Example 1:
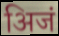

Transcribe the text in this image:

अिजं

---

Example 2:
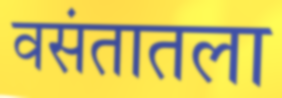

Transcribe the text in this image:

वसंतातला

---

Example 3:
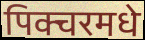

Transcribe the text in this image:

पिक्चरमधे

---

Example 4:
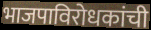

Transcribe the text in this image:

भाजपाविरोधकांची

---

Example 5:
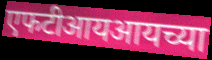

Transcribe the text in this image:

एफटीआयआयच्या